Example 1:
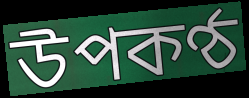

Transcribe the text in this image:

উপকণ্ঠ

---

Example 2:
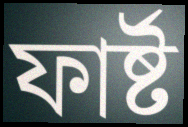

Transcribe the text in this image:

ফাৰ্ষ্ট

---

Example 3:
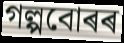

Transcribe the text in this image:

গল্পবোৰৰ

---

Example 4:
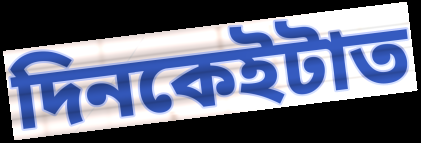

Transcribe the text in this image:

দিনকেইটাত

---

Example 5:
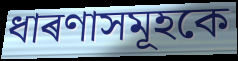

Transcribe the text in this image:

ধাৰণাসমূহকে